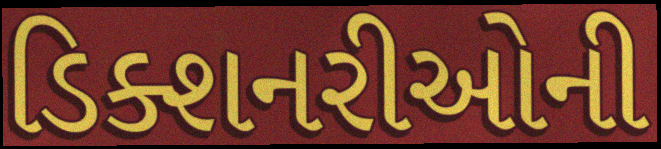
ડિક્શનરીઓની